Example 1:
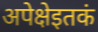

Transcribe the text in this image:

अपेक्षेइतकं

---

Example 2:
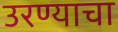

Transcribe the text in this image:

उरण्याचा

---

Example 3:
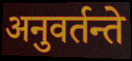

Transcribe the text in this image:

अनुवर्तन्ते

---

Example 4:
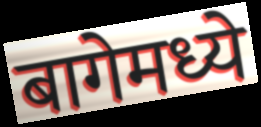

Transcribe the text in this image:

बागेमध्ये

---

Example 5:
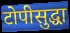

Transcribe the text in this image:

टोपीसुद्धा